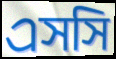
এসসি